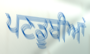
ਪਣਡੂਬੀਆਂ